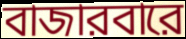
বাজারবারে